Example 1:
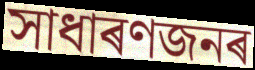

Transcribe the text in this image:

সাধাৰণজনৰ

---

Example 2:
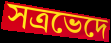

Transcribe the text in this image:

সত্ৰভেদে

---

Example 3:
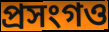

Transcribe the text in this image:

প্ৰসংগও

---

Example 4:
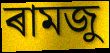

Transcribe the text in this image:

ৰামজু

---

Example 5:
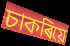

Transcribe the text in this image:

চাকৰিয়ে